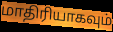
மாதிரியாகவும்